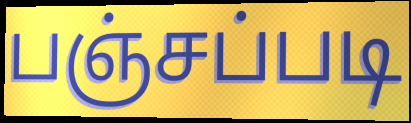
பஞ்சப்படி